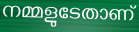
നമ്മളുടേതാണ്